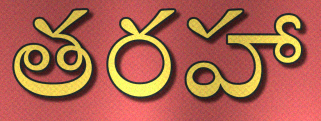
తరహా